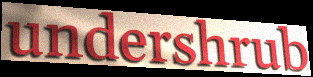
undershrub